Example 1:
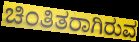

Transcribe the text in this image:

ಚಿಂತಿತರಾಗಿರುವ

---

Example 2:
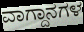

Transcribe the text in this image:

ವಾಗ್ದಾನಗಳ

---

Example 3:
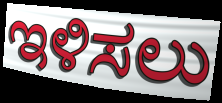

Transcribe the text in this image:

ಇಳಿಸಲು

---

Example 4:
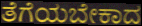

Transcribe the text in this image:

ತೆಗೆಯಬೇಕಾದ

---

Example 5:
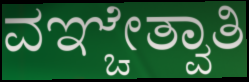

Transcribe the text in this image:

ವಞ್ಚೇತ್ವಾತಿ